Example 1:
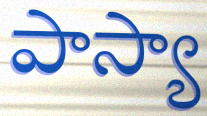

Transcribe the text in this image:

పాస్యా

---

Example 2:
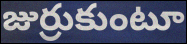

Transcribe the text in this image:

జుర్రుకుంటూ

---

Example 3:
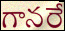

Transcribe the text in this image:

గానరే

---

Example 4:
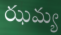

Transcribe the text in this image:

ఝమ్య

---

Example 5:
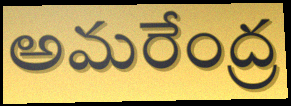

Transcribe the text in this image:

అమరేంద్ర